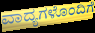
ವಾದ್ಯಗಳೊಂದಿಗೆ